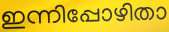
ഇന്നിപ്പോഴിതാ